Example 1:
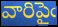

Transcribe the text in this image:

వారిపైఁ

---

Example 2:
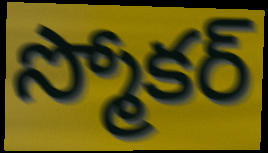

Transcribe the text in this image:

స్మోకర్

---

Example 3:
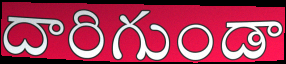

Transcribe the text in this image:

దారిగుండా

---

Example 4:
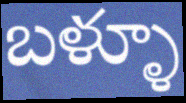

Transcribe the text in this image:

బళ్ళూ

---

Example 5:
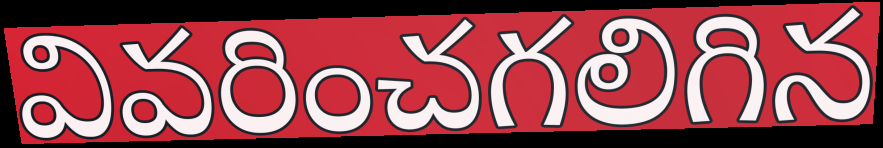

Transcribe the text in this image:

వివరించగలిగిన